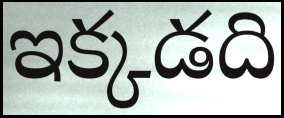
ఇక్కడది